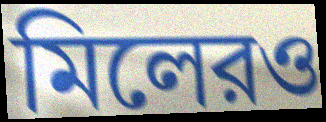
মিলেরও